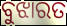
ବୁଝାରତ